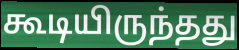
கூடியிருந்தது